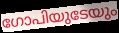
ഗോപിയുടേയും